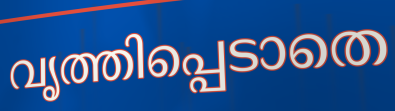
വൃത്തിപ്പെടാതെ